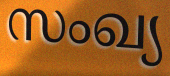
സംഖ്യ